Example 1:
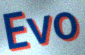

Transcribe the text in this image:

Evo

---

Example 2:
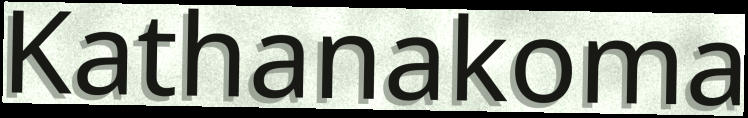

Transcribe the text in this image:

Kathanakoma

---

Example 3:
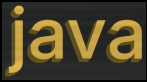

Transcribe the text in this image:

java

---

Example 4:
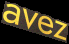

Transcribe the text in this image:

avez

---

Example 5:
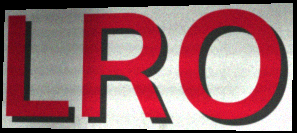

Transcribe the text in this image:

LRO